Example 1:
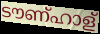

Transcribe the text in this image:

ടൗണ്ഹാള്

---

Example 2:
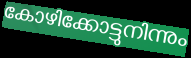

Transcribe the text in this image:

കോഴിക്കോട്ടുനിന്നും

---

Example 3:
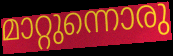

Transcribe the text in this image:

മാറ്റുന്നൊരു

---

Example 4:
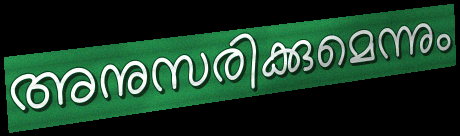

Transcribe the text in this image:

അനുസരിക്കുമെന്നും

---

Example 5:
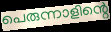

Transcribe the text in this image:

പെരുന്നാളിന്റെ